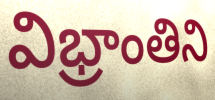
విభ్రాంతిని